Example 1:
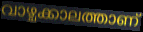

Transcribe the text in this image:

വാഴ്ചക്കാലത്താണ്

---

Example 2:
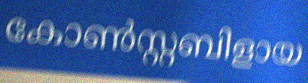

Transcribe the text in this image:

കോൺസ്റ്റബിളായ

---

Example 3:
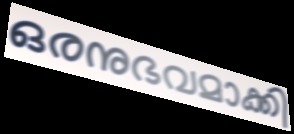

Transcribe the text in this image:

ഒരനുഭവമാക്കി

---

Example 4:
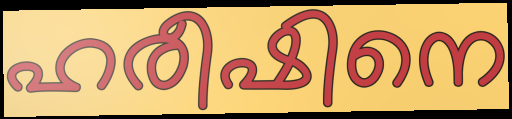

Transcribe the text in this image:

ഹരീഷിനെ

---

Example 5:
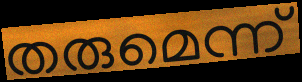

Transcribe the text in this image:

തരുമെന്ന്